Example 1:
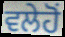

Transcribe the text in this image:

ਵਲੇਹੋਂ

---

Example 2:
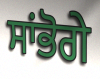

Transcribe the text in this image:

ਸਾਂਭੋਗੇ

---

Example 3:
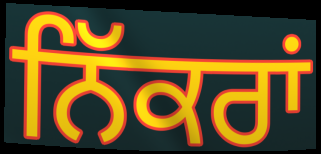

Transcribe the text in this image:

ਨਿੱਕਰਾਂ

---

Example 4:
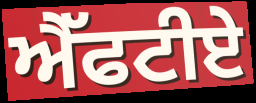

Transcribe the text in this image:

ਐੱਫਟੀਏ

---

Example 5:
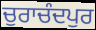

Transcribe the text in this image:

ਚੁਰਾਚੰਦਪੁਰ